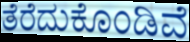
ತೆರೆದುಕೊಂಡಿವೆ